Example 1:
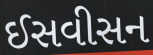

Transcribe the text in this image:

ઈસવીસન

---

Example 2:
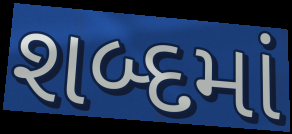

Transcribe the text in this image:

શબ્દમાં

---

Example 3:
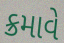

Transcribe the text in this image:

ક્રમાવે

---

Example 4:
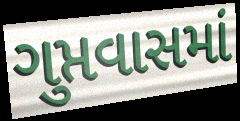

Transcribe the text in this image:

ગુપ્તવાસમાં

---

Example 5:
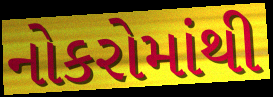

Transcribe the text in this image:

નોકરોમાંથી